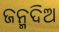
ଜନ୍ମଦିଅ